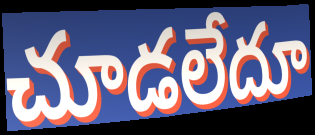
చూడలేదూ